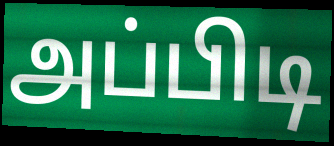
அப்பிடி